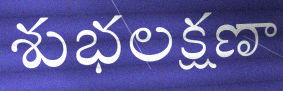
శుభలక్షణా